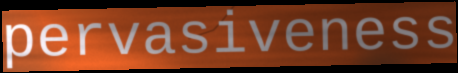
pervasiveness